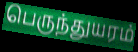
பெருந்துயரம்